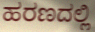
ಹರಣದಲ್ಲಿ